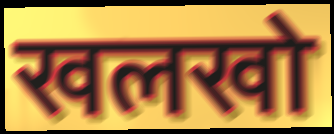
खलखो